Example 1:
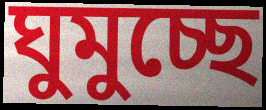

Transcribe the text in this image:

ঘুমুচ্ছে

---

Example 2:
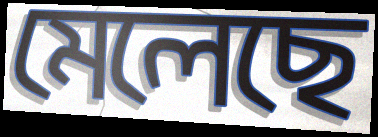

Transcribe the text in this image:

মেলেছে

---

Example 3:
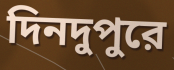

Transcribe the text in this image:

দিনদুপুরে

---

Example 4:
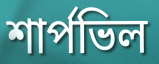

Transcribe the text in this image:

শার্পভিল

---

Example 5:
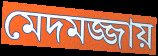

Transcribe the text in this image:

মেদমজ্জায়